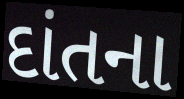
દાંતના